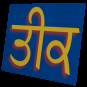
ਤੀਕ